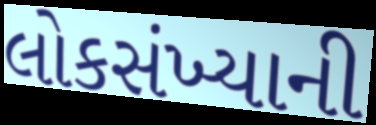
લોકસંખ્યાની